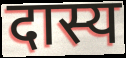
दास्य